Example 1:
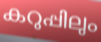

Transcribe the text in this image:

കറുപ്പിലും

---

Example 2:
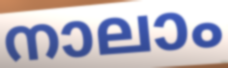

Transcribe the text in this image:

നാലാം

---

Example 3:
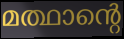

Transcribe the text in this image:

മത്ഥാന്റെ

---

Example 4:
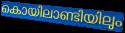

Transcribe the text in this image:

കൊയിലാണ്ടിയിലും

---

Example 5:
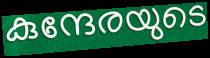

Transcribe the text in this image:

കുന്ദേരയുടെ